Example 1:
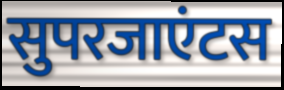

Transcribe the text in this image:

सुपरजाएंटस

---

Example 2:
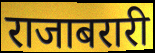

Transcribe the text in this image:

राजाबरारी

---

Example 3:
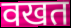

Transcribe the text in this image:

वखत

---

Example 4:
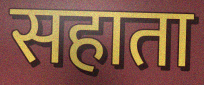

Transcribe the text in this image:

सहाता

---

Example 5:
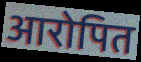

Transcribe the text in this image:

आरोपित